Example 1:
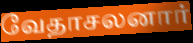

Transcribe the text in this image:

வேதாசலனார்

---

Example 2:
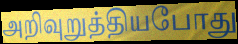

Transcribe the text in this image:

அறிவுறுத்தியபோது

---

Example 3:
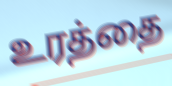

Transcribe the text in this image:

உரத்தை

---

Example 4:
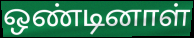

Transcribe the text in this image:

ஒண்டினாள்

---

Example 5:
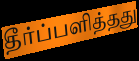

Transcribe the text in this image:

தீர்ப்பளித்தது